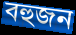
বহুজন